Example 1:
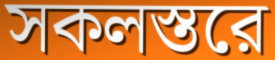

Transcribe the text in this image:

সকলস্তরে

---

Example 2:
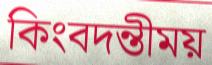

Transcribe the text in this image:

কিংবদন্তীময়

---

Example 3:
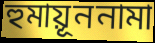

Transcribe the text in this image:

হুমায়ূননামা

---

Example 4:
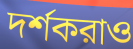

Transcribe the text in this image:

দর্শকরাও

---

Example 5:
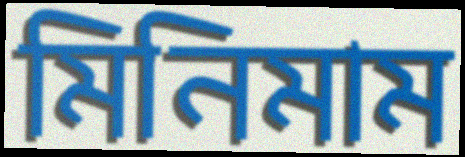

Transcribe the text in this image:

মিনিমাম